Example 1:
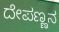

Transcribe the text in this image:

ದೇಪಣ್ಣನ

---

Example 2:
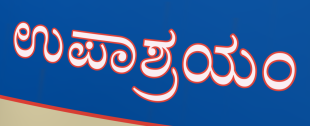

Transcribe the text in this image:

ಉಪಾಶ್ರಯಂ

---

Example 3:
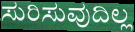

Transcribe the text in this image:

ಸುರಿಸುವುದಿಲ್ಲ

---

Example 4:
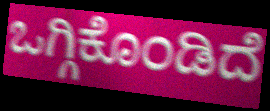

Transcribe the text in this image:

ಒಗ್ಗಿಕೊಂಡಿದೆ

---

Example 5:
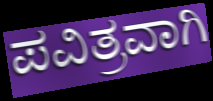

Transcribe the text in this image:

ಪವಿತ್ರವಾಗಿ